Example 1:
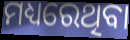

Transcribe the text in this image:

ମଧ୍ୟରେଥିବା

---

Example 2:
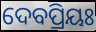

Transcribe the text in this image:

ଦେବପ୍ରିୟଃ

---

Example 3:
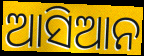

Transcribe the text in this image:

ଆସିଆନ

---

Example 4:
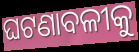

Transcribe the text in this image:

ଘଟଣାବଳୀକୁ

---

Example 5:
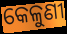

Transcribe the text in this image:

କେଳୁଣୀ